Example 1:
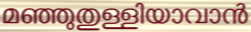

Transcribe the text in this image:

മഞ്ഞുതുള്ളിയാവാൻ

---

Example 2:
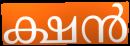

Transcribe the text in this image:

ക്ഷൻ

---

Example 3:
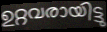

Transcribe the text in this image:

ഉറ്റവരായിട്ടു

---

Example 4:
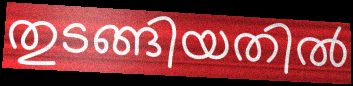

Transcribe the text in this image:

തുടങ്ങിയതിൽ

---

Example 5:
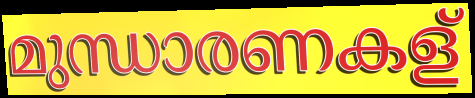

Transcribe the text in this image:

മുന്ധാരണകള്